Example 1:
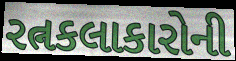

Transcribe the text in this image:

રત્નકલાકારોની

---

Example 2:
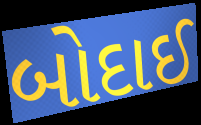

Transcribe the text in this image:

બોદાઈ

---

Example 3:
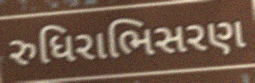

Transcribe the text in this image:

રુધિરાભિસરણ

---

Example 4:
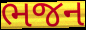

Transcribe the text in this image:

ભજન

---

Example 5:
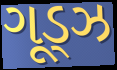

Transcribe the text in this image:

ગૂડ્ઝ